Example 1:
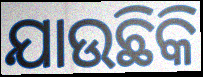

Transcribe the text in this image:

ଯାଉଛିକି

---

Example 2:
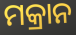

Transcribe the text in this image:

ମକ୍ରାନ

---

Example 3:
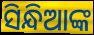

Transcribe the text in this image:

ସିନ୍ଧିଆଙ୍କ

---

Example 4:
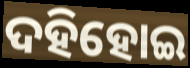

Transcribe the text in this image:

ଦହିହୋଇ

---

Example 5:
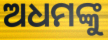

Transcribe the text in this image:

ଅଧମଙ୍କୁ